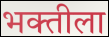
भक्तीला